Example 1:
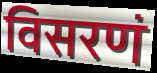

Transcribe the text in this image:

विसरणं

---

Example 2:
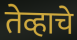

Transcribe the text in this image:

तेव्हाचे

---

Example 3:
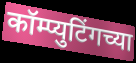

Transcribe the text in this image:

कॉम्प्युटिंगच्या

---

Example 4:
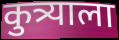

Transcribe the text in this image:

कुत्र्याला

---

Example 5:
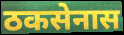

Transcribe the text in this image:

ठकसेनास